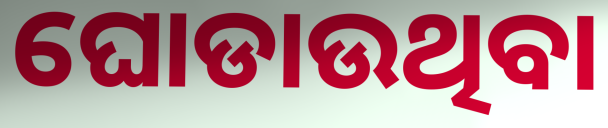
ଘୋଡାଉଥିବା